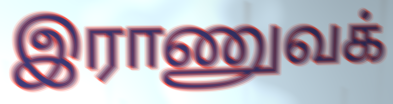
இராணுவக்